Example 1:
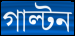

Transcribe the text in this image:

গাল্টন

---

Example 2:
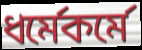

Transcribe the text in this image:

ধর্মেকর্মে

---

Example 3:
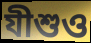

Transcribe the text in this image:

যীশুও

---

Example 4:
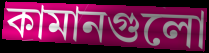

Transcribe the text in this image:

কামানগুলো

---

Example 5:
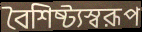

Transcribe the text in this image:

বৈশিষ্ট্যস্বরূপ